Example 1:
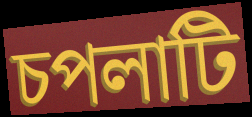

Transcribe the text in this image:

চপলাটি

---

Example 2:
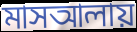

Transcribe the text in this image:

মাসআলায়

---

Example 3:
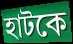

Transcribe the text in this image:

হাটকে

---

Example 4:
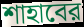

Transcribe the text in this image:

শাহাবের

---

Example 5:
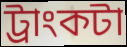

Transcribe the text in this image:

ট্রাংকটা